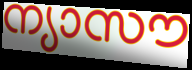
ന്യാസൗ